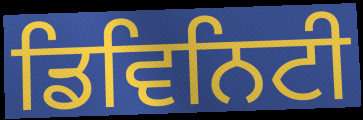
ਡਿਵਿਨਿਟੀ